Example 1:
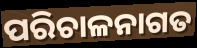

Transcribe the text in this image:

ପରିଚାଳନାଗତ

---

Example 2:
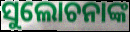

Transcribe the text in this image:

ସୁଲୋଚନାଙ୍କ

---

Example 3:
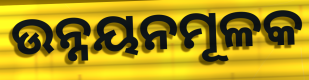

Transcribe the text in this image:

ଉନ୍ନୟନମୂଳକ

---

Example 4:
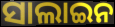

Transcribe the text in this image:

ସାଲାଇନ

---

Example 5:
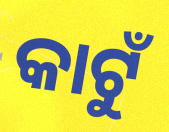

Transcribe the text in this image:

କାଟୁଁ